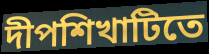
দীপশিখাটিতে